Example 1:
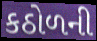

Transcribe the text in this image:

કઠોળની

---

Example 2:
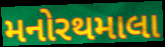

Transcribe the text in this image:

મનોરથમાલા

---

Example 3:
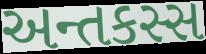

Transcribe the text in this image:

અન્તકસ્સ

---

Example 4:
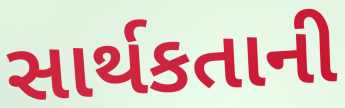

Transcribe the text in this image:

સાર્થકતાની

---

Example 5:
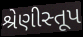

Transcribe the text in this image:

શ્રેણીસ્તૂપ